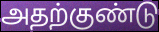
அதற்குண்டு